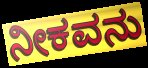
ನೀಕವನು